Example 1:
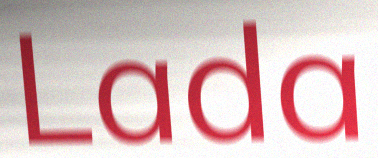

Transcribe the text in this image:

Lada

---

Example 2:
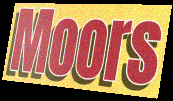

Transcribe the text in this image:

Moors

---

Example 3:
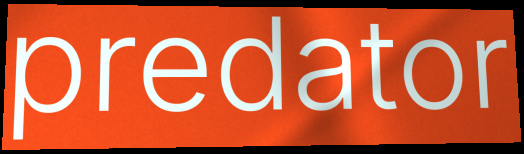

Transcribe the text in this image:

predator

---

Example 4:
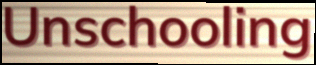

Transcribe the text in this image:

Unschooling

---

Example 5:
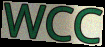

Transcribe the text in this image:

WCC